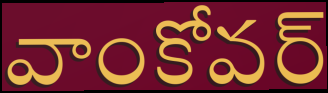
వాంకోవర్